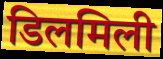
डिलमिली